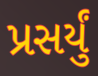
પ્રસર્યું